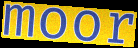
moor